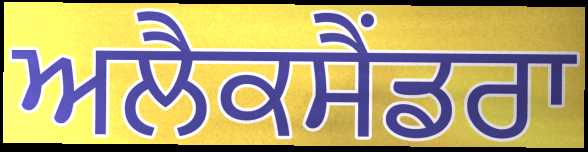
ਅਲੈਕਸੈਂਡਰਾ